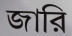
জারি